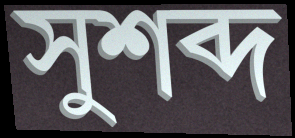
সুশব্দ